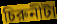
চিরুনীটা